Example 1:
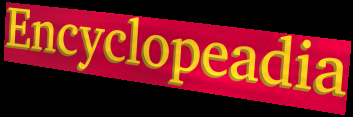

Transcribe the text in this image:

Encyclopeadia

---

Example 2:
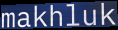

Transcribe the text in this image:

makhluk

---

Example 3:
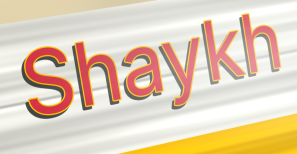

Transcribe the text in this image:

Shaykh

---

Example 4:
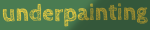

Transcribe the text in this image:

underpainting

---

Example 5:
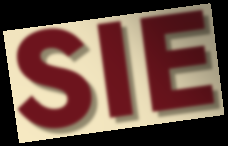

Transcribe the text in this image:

SIE